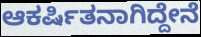
ಆಕರ್ಷಿತನಾಗಿದ್ದೇನೆ